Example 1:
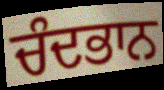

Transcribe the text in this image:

ਚੰਦਭਾਨ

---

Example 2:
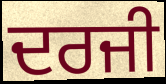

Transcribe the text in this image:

ਦਰਜੀ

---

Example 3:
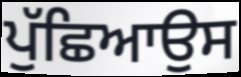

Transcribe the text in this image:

ਪੁੱਛਿਆਉਸ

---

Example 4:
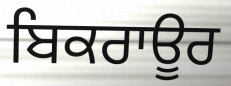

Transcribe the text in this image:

ਬਿਕਰਾਊਰ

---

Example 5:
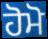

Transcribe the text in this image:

ਹੋਮੋ